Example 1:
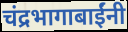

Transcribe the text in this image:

चंद्रभागाबाईंनी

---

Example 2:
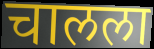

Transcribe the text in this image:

चालला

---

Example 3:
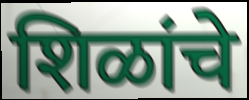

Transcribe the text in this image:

शिळांचे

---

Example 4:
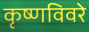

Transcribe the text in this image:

कृष्णविवरे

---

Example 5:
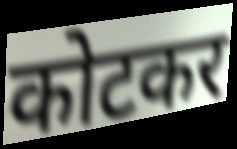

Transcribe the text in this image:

कोटकर